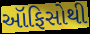
ઑફિસોથી